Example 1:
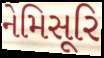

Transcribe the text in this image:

નેમિસૂરિ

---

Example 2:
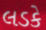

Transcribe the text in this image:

લડકે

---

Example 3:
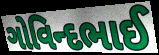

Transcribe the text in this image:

ગોવિન્દભાઈ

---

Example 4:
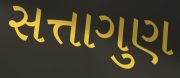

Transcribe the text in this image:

સત્તાગુણ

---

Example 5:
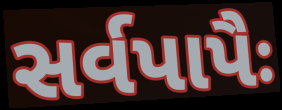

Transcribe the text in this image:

સર્વપાપૈઃ